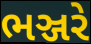
ભઞ્જરે